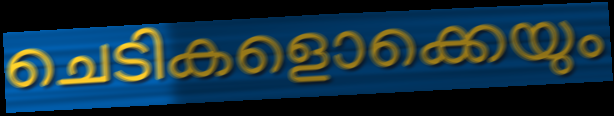
ചെടികളൊക്കെയും